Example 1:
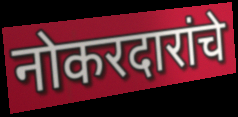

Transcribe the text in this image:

नोकरदारांचे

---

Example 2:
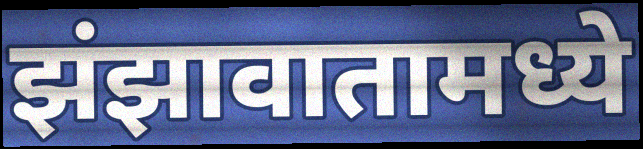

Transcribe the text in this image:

झंझावातामध्ये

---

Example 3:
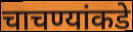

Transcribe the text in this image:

चाचण्यांकडे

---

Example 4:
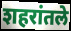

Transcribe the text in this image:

शहरांतले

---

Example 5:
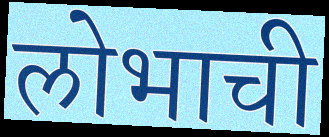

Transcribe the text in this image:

लोभाची